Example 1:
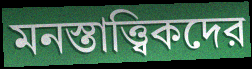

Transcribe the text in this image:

মনস্তাত্ত্বিকদের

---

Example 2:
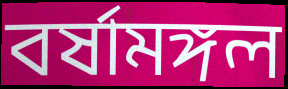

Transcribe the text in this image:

বর্ষামঙ্গল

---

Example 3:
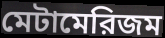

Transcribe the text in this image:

মেটামেরিজম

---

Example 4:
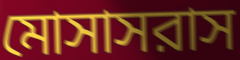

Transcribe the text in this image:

মোসাসরাস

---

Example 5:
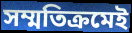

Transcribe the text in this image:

সম্মতিক্রমেই